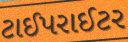
ટાઈપરાઈટર